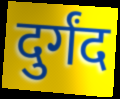
दुर्गंद